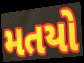
મતયો